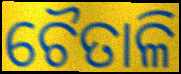
ଚୈତାଳି